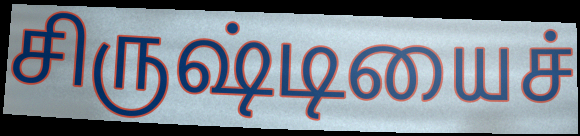
சிருஷ்டியைச்